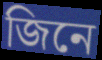
জিনে